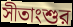
সীতাংশুর